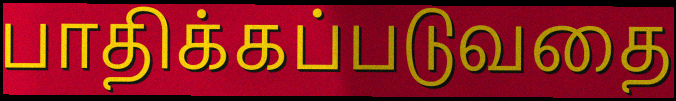
பாதிக்கப்படுவதை